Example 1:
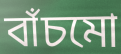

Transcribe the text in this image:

বাঁচমো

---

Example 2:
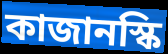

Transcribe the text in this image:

কাজানস্কি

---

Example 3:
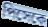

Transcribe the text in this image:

পিসেকে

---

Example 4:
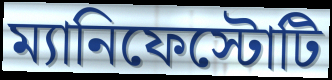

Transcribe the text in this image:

ম্যানিফেস্টোটি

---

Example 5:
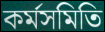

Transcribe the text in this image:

কর্মসমিতি